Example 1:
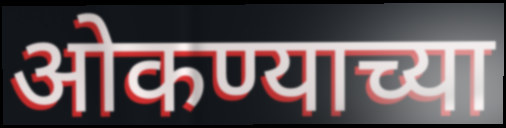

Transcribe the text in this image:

ओकण्याच्या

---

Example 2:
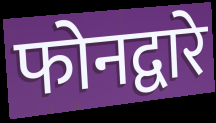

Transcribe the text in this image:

फोनद्वारे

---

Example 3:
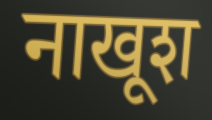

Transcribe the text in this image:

नाखूश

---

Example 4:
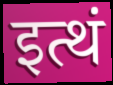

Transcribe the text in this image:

इत्थं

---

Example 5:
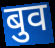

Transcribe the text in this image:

बुव